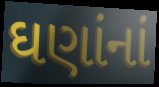
ઘણાંનાં